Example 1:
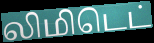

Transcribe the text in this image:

லிமிடெட்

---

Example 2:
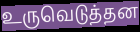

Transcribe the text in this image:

உருவெடுத்தன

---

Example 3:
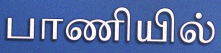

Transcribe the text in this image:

பாணியில்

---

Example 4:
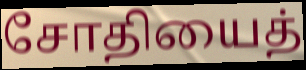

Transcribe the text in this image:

சோதியைத்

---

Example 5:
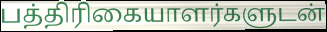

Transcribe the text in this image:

பத்திரிகையாளர்களுடன்